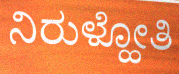
ನಿರುಳ್ಹೋತಿ